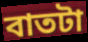
বাতটা